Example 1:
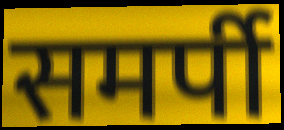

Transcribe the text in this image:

समर्पी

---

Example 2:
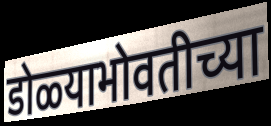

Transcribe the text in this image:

डोळ्याभोवतीच्या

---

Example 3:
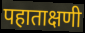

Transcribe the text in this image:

पहाताक्षणी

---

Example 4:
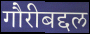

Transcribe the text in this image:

गौरीबद्दल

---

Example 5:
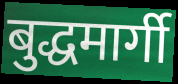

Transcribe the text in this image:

बुद्धमार्गी